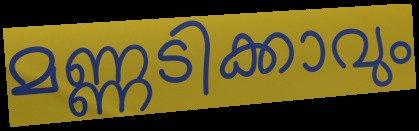
മണ്ണടിക്കാവും